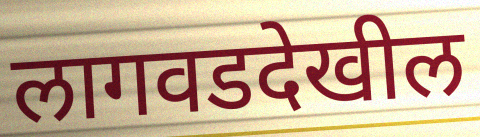
लागवडदेखील